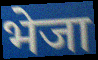
भेजा